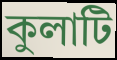
কুলাটি